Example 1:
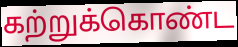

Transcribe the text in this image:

கற்றுக்கொண்ட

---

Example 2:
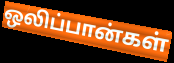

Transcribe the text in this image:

ஒலிப்பான்கள்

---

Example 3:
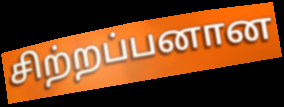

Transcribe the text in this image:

சிற்றப்பனான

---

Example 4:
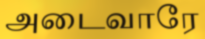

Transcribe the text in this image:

அடைவாரே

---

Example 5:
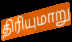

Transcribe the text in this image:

திரியுமாறு